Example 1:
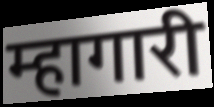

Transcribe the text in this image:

म्हागारी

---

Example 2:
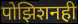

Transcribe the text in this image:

पोझिशनही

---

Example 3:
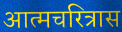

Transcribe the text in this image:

आत्मचरित्रास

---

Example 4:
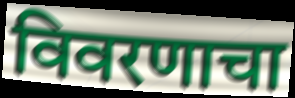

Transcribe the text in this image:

विवरणाचा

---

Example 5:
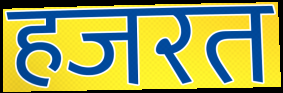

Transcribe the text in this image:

हजरत